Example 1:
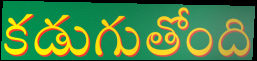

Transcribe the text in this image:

కడుగుతోంది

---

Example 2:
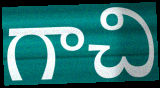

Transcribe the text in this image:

గాచి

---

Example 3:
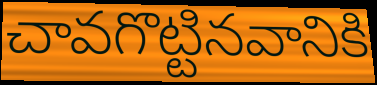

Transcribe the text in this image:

చావగొట్టినవానికి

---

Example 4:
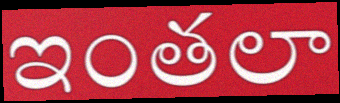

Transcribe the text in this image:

ఇంతలా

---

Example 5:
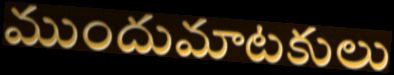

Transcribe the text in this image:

ముందుమాటకులు